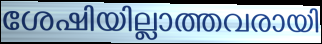
ശേഷിയില്ലാത്തവരായി